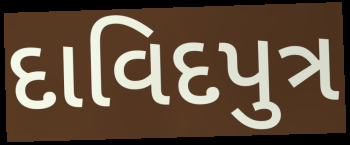
દાવિદપુત્ર